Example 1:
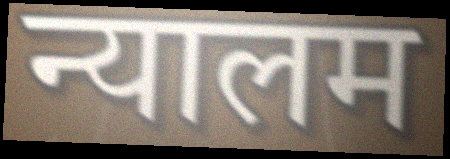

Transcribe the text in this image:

न्यालम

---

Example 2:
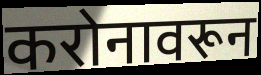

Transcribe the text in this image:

करोनावरून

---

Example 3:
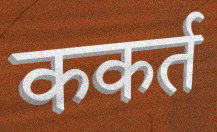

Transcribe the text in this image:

ककर्त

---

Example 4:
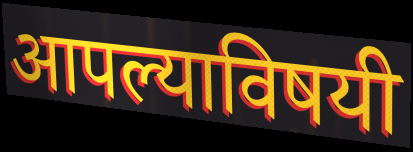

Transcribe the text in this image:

आपल्याविषयी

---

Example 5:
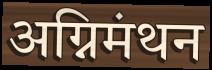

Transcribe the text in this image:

अग्निमंथन